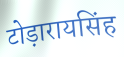
टोड़ारायसिंह